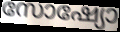
സോഷ്യോ